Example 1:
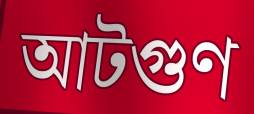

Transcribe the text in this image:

আটগুণ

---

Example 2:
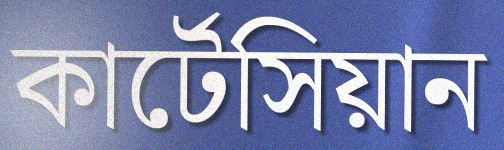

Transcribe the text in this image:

কার্টেসিয়ান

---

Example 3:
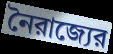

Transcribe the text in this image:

নৈরাজ্যের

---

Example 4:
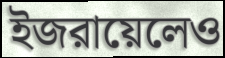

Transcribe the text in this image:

ইজরায়েলেও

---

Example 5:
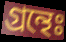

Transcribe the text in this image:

গ্রন্থেঃ